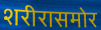
शरीरासमोर